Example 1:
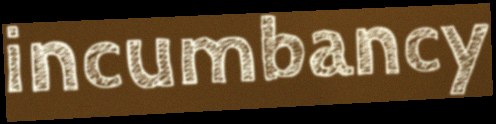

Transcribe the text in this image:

incumbancy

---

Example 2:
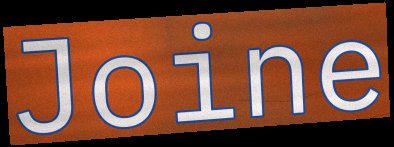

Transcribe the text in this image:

Joine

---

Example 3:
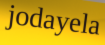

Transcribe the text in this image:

jodayela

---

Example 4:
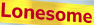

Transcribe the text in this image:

Lonesome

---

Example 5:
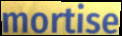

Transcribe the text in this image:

mortise